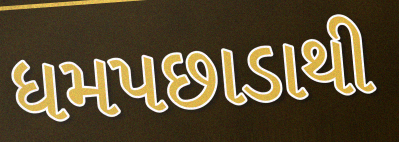
ધમપછાડાથી